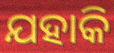
ଯହାକି